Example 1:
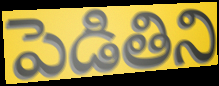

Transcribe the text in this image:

పెడితిని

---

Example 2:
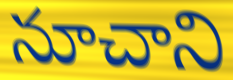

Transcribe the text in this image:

నూచాని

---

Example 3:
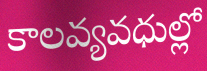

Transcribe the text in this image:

కాలవ్యవధుల్లో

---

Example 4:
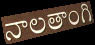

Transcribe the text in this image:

నాలతాంగి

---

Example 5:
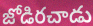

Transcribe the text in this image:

జోడిరచాడు